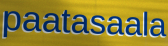
paatasaala